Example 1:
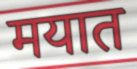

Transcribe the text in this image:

मयात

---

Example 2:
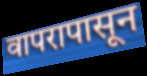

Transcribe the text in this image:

वापरापासून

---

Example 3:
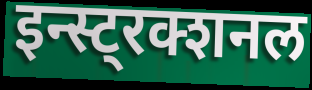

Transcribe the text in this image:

इन्स्ट्रक्शनल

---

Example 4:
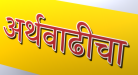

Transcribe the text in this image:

अर्थवाढीचा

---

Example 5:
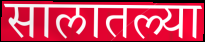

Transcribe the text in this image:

सालातल्या